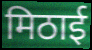
मिठाई